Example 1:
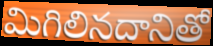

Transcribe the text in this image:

మిగిలినదానితో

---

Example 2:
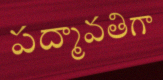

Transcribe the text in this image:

పద్మావతిగా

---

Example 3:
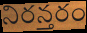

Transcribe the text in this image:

నిరన్తరం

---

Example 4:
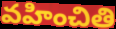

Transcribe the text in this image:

వహించితి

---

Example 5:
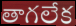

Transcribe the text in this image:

తాగలేక